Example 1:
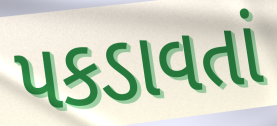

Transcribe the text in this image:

પકડાવતાં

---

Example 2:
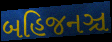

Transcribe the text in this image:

બહિજનઞ્ચ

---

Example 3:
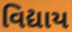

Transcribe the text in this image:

વિદ્યાય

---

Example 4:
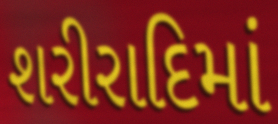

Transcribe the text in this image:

શરીરાદિમાં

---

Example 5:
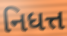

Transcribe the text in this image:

નિધત્ત